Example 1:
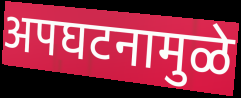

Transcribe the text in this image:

अपघटनामुळे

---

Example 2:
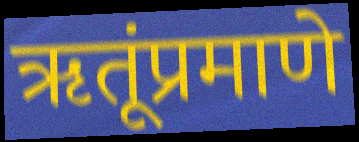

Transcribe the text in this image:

ऋतूंप्रमाणे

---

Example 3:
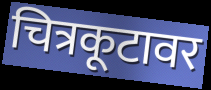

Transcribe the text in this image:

चित्रकूटावर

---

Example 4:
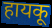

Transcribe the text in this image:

हायकू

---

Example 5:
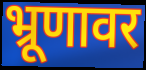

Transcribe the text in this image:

भ्रूणावर